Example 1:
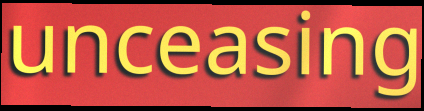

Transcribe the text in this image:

unceasing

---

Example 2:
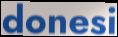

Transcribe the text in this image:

donesi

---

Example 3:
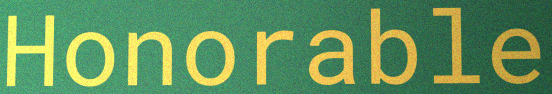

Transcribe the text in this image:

Honorable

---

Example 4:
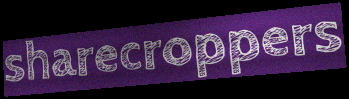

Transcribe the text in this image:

sharecroppers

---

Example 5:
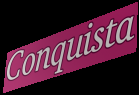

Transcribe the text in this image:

Conquista